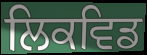
ਲਿਕਵਿਡ